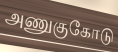
அணுகுகோடு